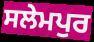
ਸਲੇਮਪੁਰ